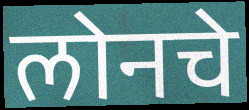
लोनचे